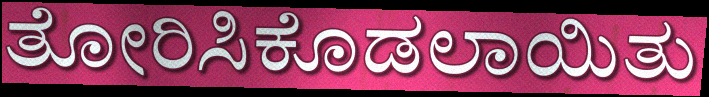
ತೋರಿಸಿಕೊಡಲಾಯಿತು